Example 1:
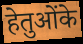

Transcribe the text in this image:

हेतुओंके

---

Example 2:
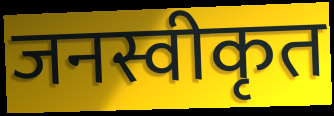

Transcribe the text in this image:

जनस्वीकृत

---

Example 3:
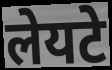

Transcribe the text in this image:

लेयटे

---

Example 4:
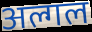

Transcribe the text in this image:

अल्गल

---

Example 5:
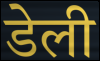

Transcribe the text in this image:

डेली